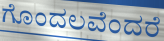
ಗೊಂದಲವೆಂದರೆ